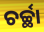
ଚର୍ଚ୍ଛା